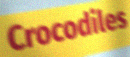
Crocodiles